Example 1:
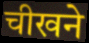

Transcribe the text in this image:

चीखने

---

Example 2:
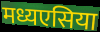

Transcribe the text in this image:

मध्यएसिया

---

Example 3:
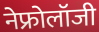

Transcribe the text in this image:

नेफ्रोलॉजी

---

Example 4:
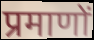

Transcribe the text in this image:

प्रमाणों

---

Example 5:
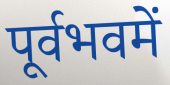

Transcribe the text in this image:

पूर्वभवमें